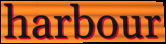
harbour